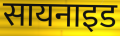
सायनाइड